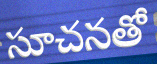
సూచనతో